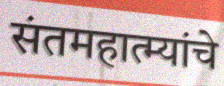
संतमहात्म्यांचे